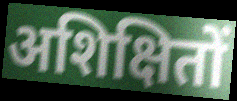
अशिक्षितों